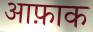
आफ़ाक